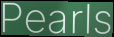
Pearls